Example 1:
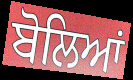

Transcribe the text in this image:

ਬੋਲਿਆਂ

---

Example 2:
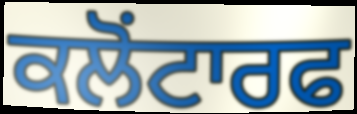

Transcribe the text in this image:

ਕਲੋਂਟਾਰਫ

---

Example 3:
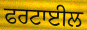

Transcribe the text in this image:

ਫਰਟਾਈਲ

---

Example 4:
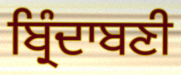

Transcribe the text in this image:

ਬ੍ਰਿੰਦਾਬਣੀ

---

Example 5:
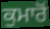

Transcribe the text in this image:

ਕੁਮਾਰੋਂ